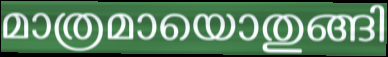
മാത്രമായൊതുങ്ങി